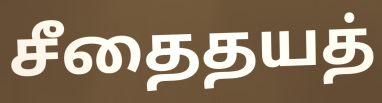
சீதைதயத்